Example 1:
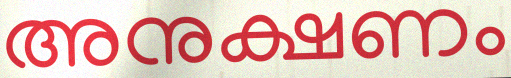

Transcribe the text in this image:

അനുക്ഷണം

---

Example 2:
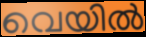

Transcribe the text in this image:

വെയിൽ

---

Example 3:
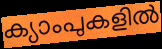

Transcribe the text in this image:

ക്യാംപുകളിൽ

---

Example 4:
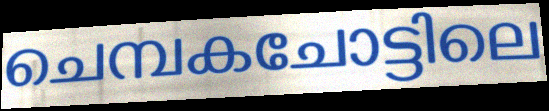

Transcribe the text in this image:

ചെമ്പകചോട്ടിലെ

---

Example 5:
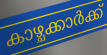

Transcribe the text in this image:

കാഴ്ചക്കാർക്ക്